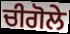
ਚੀਗੋਲੇ